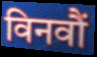
विनवौं